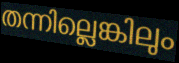
തന്നില്ലെങ്കിലും